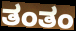
ತಂತಂ